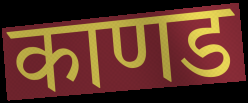
काणड